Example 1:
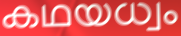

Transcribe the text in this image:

കഥയധ്വം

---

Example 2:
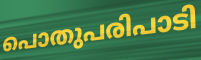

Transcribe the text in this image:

പൊതുപരിപാടി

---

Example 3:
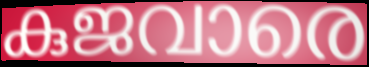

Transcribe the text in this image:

കുജവാരെ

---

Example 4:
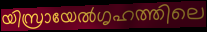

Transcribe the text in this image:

യിസ്രായേൽഗൃഹത്തിലെ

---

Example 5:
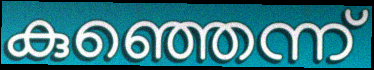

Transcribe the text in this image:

കുഞ്ഞെന്ന്